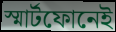
স্মার্টফোনেই